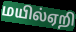
மயில்ஏறி